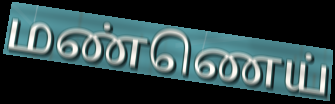
மண்ணெய்